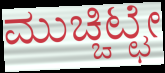
ಮುಚ್ಚಿಟ್ಟೇ